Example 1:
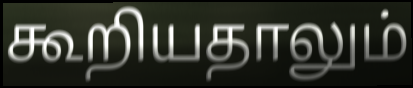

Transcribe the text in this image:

கூறியதாலும்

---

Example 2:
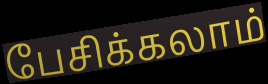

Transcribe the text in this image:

பேசிக்கலாம்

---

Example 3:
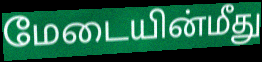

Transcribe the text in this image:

மேடையின்மீது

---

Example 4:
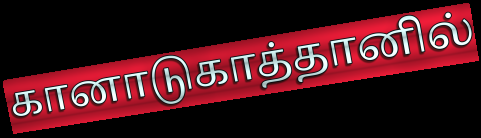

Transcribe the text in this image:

கானாடுகாத்தானில்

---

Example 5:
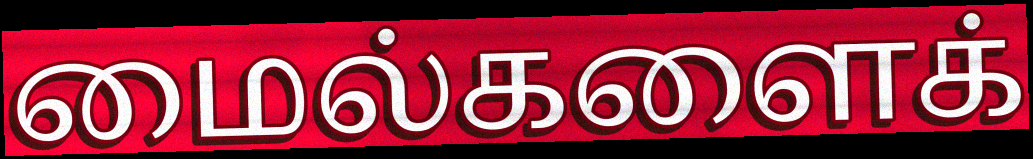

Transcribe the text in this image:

மைல்களைக்